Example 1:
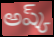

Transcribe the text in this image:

అష్క్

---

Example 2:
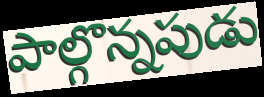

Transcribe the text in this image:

పాల్గొన్నపుడు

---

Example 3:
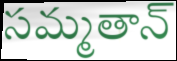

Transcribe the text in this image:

సమ్మతాన్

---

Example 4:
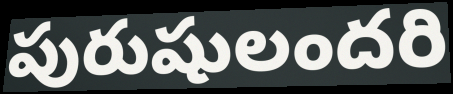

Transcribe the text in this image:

పురుషులందరి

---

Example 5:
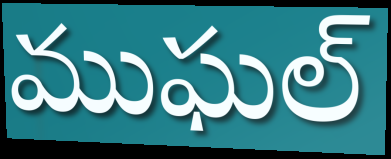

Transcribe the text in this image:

ముఘల్